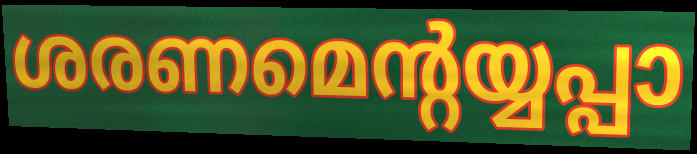
ശരണമെന്റയ്യപ്പാ